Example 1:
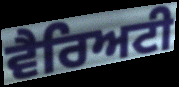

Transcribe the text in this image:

ਵੈਰਿਅਟੀ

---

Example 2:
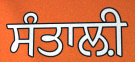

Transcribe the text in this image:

ਸੰਤਾਲ਼ੀ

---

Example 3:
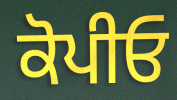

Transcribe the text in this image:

ਕੋਪੀਓ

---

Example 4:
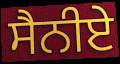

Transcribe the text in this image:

ਸੈਨੀਏ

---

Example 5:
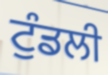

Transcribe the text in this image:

ਟੁੰਡਲੀ